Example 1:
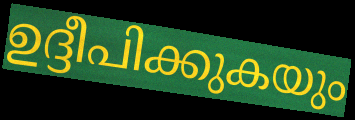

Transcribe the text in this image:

ഉദ്ദീപിക്കുകയും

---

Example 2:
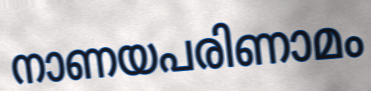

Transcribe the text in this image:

നാണയപരിണാമം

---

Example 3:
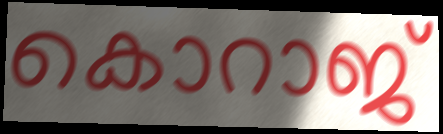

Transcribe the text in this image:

കൊറാജ്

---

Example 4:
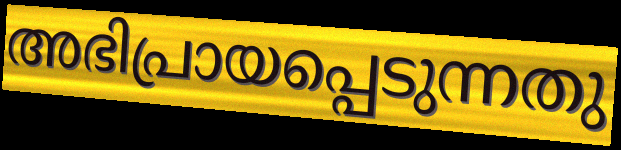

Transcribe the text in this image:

അഭിപ്രായപ്പെടുന്നതു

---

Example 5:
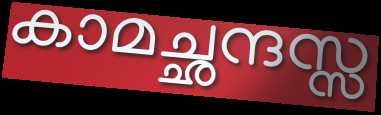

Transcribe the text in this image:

കാമച്ഛന്ദസ്സ